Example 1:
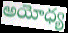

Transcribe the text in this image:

అయోధ్య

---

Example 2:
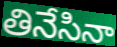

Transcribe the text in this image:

తినేసినా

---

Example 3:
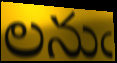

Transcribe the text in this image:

లనుఁ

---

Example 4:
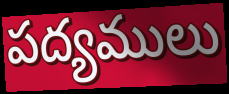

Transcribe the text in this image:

పద్యములు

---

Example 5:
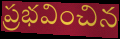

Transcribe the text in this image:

ప్రభవించిన